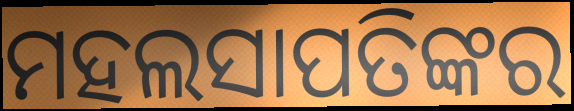
ମହଲସାପତିଙ୍କର